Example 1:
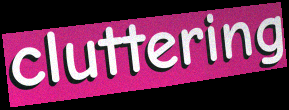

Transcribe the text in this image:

cluttering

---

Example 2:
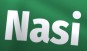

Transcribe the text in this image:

Nasi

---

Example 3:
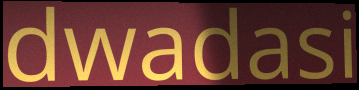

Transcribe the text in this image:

dwadasi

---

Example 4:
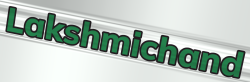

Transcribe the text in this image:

Lakshmichand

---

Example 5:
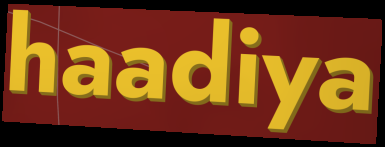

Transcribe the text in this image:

haadiya